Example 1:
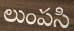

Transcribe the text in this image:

లుంపసి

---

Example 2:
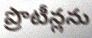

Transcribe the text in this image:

ప్రొటీన్లను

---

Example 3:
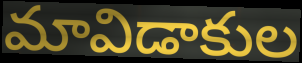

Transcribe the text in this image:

మావిడాకుల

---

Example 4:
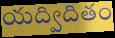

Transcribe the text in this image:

యద్విదితం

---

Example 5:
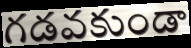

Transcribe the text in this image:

గడవకుండా